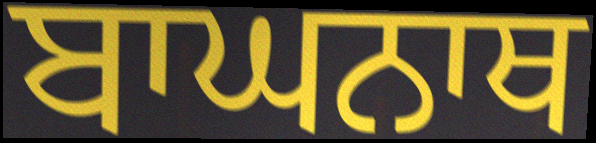
ਬਾਘਨਾਥ